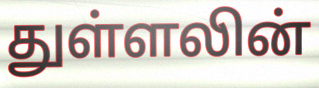
துள்ளலின்